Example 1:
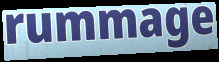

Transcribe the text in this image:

rummage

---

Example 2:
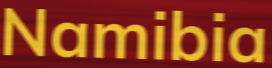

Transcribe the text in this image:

Namibia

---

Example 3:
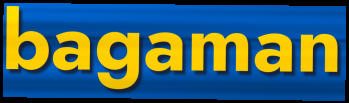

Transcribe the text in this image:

bagaman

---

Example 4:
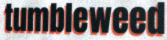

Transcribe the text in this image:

tumbleweed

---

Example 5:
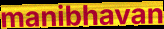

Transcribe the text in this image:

manibhavan